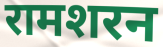
रामशरन